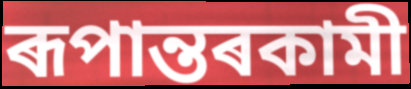
ৰূপান্তৰকামী